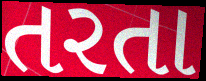
તરતા